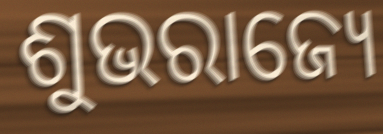
ଶୁଭରାଜ୍ୟେ